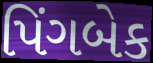
પિંગબેક